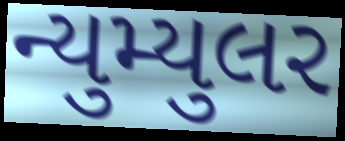
ન્યુમ્યુલર